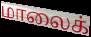
மாலைக்